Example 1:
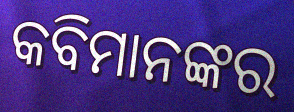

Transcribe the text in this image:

କବିମାନଙ୍କର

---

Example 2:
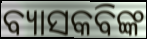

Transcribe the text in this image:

ବ୍ୟାସକବିଙ୍କ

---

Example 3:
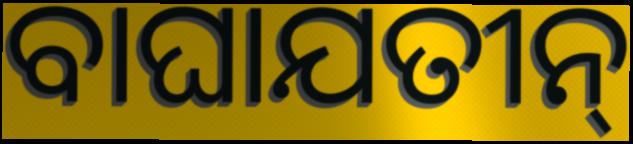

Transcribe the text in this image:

ବାଘାଯତୀନ୍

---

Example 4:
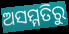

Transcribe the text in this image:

ଅସମ୍ମତିରୁ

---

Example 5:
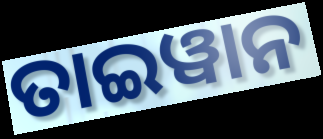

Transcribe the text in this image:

ତାଇୱାନ